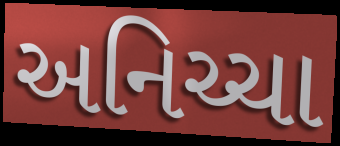
અનિચ્ચા